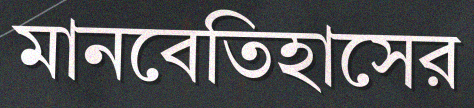
মানবেতিহাসের